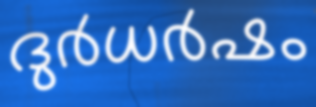
ദുർധർഷം